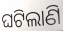
ଘଟିଲାଣି